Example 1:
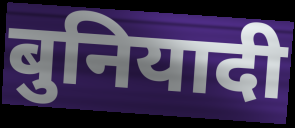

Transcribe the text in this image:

बुनियादी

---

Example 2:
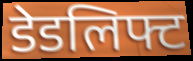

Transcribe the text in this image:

डेडलिफ्ट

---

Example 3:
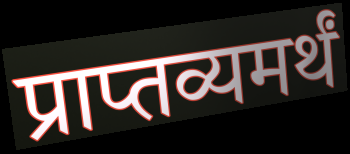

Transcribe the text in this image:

प्राप्तव्यमर्थं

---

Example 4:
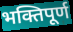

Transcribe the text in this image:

भक्तिपूर्ण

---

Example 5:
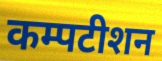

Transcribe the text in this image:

कम्पटीशन